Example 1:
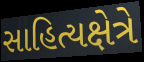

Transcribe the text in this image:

સાહિત્યક્ષેત્રે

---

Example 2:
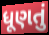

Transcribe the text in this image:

ધૂણતું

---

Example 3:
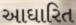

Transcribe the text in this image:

આઘારિત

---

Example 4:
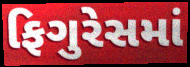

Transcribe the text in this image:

ફિગુરેસમાં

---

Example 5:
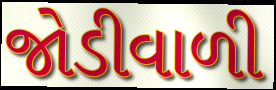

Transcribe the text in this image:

જોડીવાળી